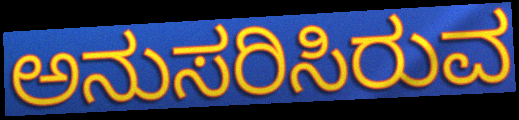
ಅನುಸರಿಸಿರುವ